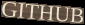
GITHUB